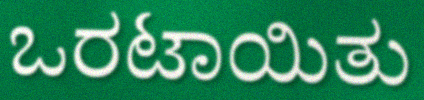
ಒರಟಾಯಿತು